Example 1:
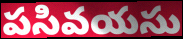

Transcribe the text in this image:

పసివయసు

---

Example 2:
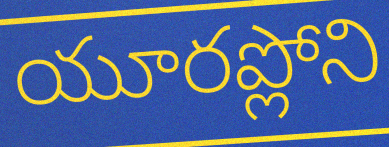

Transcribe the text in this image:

యూరప్లోని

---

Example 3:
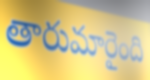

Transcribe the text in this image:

తారుమారైంది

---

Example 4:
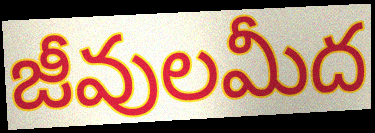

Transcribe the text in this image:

జీవులమీద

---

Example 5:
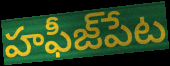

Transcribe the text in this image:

హఫీజ్‌పేట